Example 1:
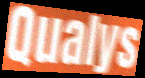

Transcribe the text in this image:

Qualys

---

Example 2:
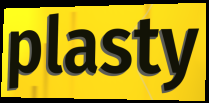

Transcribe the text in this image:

plasty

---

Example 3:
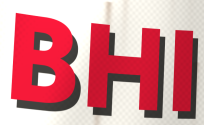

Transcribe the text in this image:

BHI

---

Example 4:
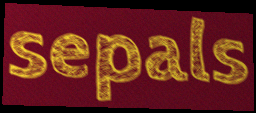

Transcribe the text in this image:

sepals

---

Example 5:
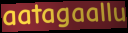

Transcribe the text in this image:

aatagaallu